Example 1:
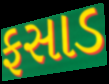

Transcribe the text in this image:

ફસાડ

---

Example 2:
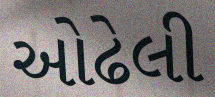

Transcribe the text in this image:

ઓઢેલી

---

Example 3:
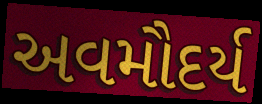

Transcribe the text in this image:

અવમૌદર્ય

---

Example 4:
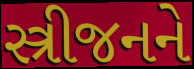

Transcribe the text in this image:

સ્ત્રીજનને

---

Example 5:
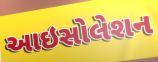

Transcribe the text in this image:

આઇસોલેશન